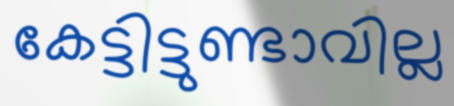
കേട്ടിട്ടുണ്ടാവില്ല